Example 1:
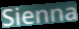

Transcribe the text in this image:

Sienna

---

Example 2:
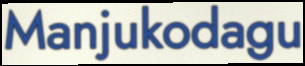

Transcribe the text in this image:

Manjukodagu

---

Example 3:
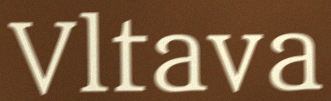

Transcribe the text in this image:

Vltava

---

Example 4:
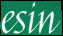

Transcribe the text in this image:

esin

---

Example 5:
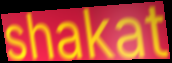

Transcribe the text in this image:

shakat